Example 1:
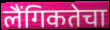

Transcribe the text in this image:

लैंगिकतेचा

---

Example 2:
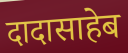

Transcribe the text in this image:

दादासाहेब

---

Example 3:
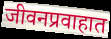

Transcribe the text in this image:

जीवनप्रवाहात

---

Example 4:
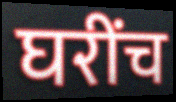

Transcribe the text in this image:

घरींच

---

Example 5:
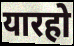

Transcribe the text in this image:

यारहो